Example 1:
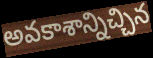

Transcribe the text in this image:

అవకాశాన్నిచ్చిన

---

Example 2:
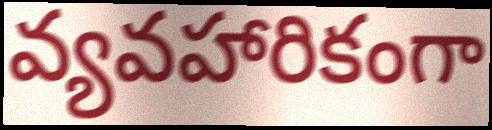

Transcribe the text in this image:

వ్యవహారికంగా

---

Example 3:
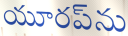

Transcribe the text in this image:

యూరప్‌ను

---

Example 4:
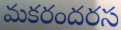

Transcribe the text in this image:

మకరందరస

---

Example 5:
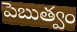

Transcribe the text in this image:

పెబుత్వం